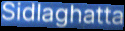
Sidlaghatta